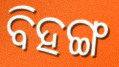
ବିହଙ୍ଗ